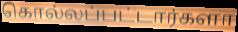
கொல்லப்பட்டார்களா